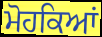
ਮੋਹਕਿਆਂ